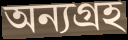
অন্যগ্রহ